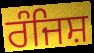
ਰੰਜਿਸ਼